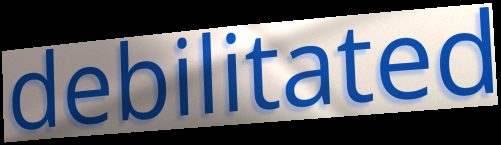
debilitated